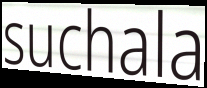
suchala